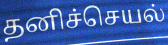
தனிச்செயல்